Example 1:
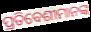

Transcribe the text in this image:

ପ୍ରତିବେଶୀମାନଙ୍କ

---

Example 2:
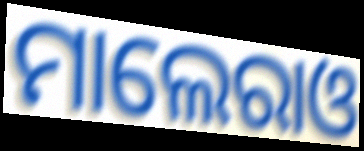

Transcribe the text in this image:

ମାଲେରାଓ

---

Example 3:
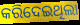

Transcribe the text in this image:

କରିଦେଇଥିଲା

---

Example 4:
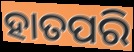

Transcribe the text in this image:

ହାତପରି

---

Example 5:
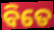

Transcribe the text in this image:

ବିତେ